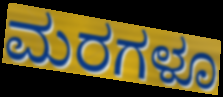
ಮರಗಳೂ